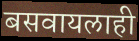
बसवायलाही